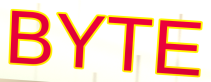
BYTE